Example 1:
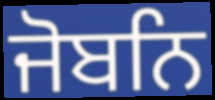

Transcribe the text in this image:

ਜੋਬਨਿ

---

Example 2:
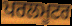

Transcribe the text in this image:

ਪਰਲਮੂਟਰ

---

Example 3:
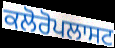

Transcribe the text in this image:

ਕਲੋਰੋਪਲਾਸਟ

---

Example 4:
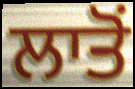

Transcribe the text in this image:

ਲਾਤੋਂ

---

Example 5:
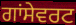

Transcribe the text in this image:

ਗਾਂਸੇਵਰਟ